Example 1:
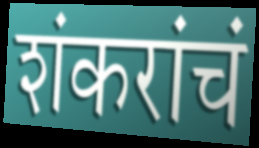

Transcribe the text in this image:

शंकरांचं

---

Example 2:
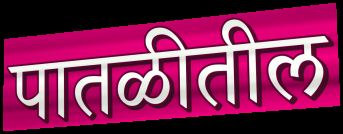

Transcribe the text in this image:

पातळीतील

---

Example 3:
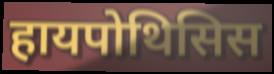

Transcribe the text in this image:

हायपोथिसिस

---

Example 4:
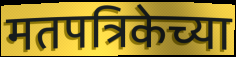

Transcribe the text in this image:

मतपत्रिकेच्या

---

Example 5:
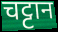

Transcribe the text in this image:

चट्टान